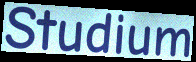
Studium